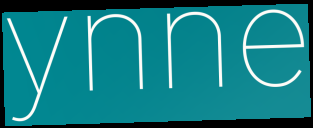
ynne